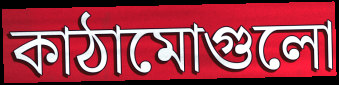
কাঠামোগুলো